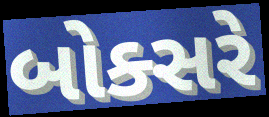
બોક્સરે